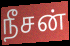
நீசன்